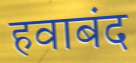
हवाबंद